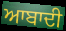
ਆਬਾਦੀ